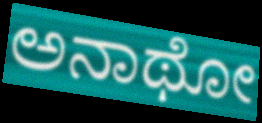
ಅನಾಥೋ